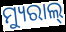
ମ୍ୟୁରାଲ୍